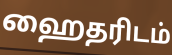
ஹைதரிடம்